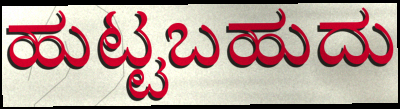
ಹುಟ್ಟಬಹುದು